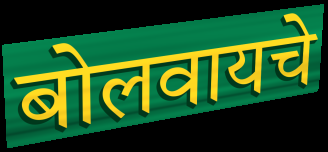
बोलवायचे